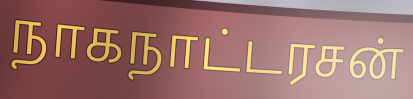
நாகநாட்டரசன்